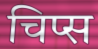
चिप्स